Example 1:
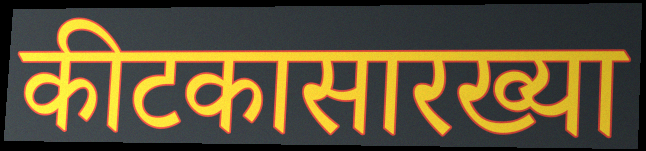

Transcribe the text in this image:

कीटकासारख्या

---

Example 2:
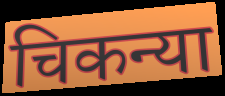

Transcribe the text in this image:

चिकन्या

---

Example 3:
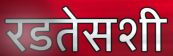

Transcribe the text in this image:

रडतेसशी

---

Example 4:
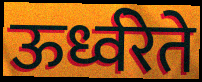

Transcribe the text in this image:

ऊर्ध्वरेते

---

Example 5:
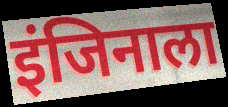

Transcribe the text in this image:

इंजिनाला